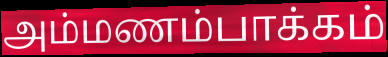
அம்மணம்பாக்கம்